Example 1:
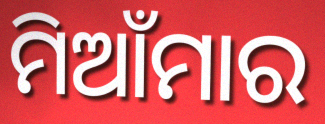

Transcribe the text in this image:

ମିଆଁମାର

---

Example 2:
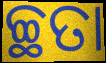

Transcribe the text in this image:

ଚ୍ଛତା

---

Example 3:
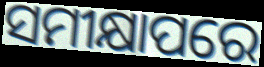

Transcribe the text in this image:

ସମୀକ୍ଷାପରେ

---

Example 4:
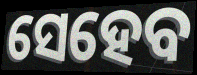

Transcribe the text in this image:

ସେହେବ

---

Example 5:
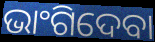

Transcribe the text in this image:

ଭାଂଗିଦେବା